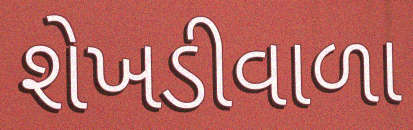
શેખડીવાળા